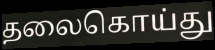
தலைகொய்து